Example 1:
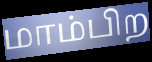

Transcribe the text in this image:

மாம்பிற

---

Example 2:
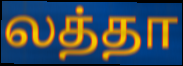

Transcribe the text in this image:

லத்தா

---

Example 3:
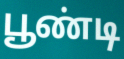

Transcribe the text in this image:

பூண்டி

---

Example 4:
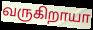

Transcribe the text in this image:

வருகிறாயா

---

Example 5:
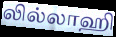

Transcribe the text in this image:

லில்லாஹி